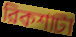
রিকশাটা